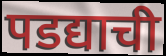
पडद्याची